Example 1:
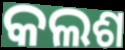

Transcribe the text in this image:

କଲଶ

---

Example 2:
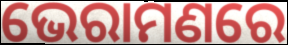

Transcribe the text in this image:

ଭେରାମଣରେ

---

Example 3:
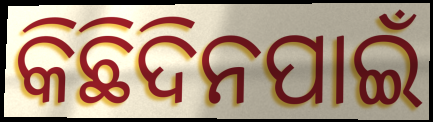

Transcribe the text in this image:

କିଛିଦିନପାଇଁ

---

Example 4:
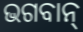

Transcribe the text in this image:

ଭଗବାନ୍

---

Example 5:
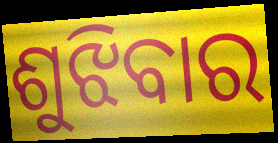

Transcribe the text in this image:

ଶୁଝିବାର